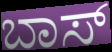
ಬಾಸ್